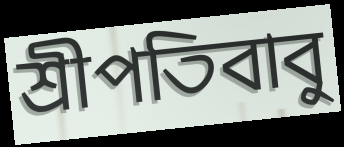
শ্রীপতিবাবু